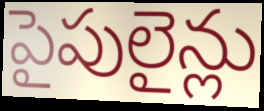
పైపులైన్లు